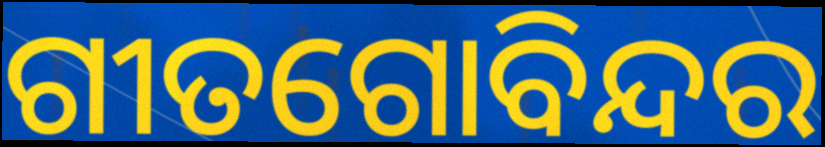
ଗୀତଗୋବିନ୍ଦର